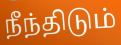
நீந்திடும்